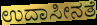
ಉದಾಸೀನತೆ